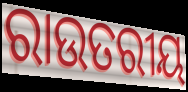
ରାଉତରୀୟ